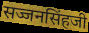
सज्जनसिंहजी